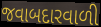
જવાબદારવાળી